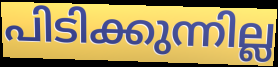
പിടിക്കുന്നില്ല